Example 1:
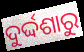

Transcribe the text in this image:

ଦୁର୍ଦ୍ଦଶାରୁ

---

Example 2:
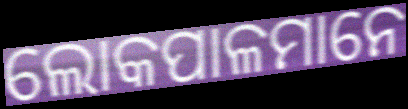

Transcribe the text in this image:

ଲୋକପାଳମାନେ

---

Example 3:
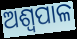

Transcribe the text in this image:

ଅଶ୍ୱପାଳ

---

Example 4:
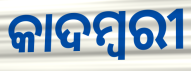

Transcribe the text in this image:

କାଦମ୍ୱରୀ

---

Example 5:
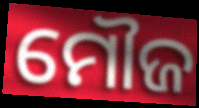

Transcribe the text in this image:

ମୌଜ